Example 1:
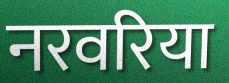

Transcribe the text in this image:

नरवरिया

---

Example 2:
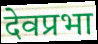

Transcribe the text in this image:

देवप्रभा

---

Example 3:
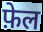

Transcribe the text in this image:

फ़ेल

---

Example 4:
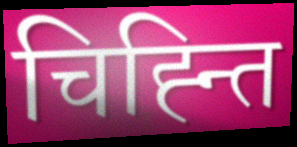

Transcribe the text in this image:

चिह्न्ति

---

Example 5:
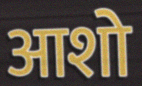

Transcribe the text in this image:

आशो